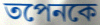
তপেনকে